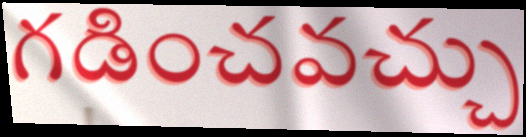
గడించవచ్చు